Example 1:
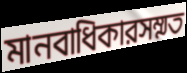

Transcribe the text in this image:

মানবাধিকারসম্মত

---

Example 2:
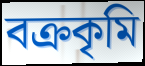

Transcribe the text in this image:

বক্রকৃমি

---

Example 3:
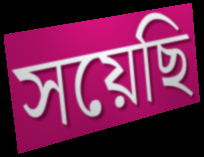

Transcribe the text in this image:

সয়েছি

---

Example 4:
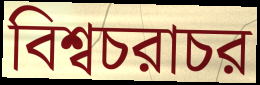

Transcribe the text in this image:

বিশ্বচরাচর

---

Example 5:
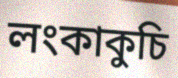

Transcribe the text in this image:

লংকাকুচি